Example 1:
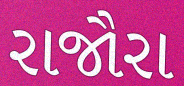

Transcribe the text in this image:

રાજૌરા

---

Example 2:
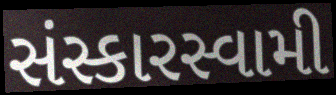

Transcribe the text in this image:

સંસ્કારસ્વામી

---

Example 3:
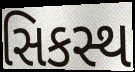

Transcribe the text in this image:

સિકસ્થ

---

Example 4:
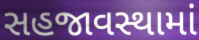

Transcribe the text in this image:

સહજાવસ્થામાં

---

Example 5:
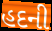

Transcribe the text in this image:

હદની